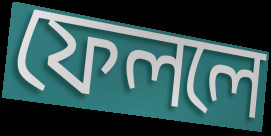
ফেললে